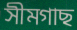
সীমগাছ